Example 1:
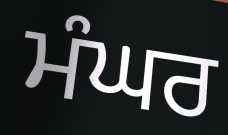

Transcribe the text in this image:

ਮੰਘਰ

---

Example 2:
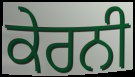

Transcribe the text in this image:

ਕੇਰਨੀ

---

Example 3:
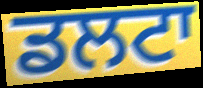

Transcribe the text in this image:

ਡਲਟਾ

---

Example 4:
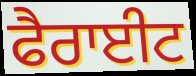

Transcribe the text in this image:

ਫੈਰਾਈਟ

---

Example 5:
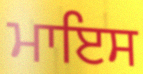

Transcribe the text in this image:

ਮਾਇਸ